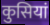
कुसियां